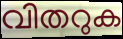
വിതറുക